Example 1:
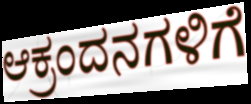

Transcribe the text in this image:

ಆಕ್ರಂದನಗಳಿಗೆ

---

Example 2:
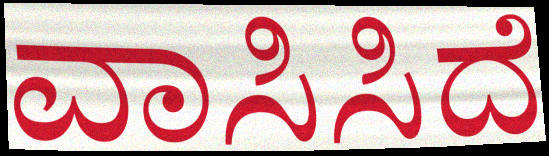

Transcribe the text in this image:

ವಾಸಿಸಿದೆ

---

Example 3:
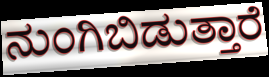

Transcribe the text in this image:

ನುಂಗಿಬಿಡುತ್ತಾರೆ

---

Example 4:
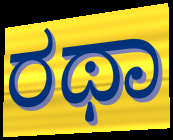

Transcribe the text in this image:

ರಥಾ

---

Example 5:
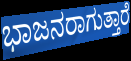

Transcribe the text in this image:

ಭಾಜನರಾಗುತ್ತಾರೆ